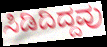
ಸಿಡಿದಿದ್ದವು